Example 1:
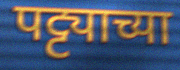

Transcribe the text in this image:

पट्ट्याच्या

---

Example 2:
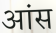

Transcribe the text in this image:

आंस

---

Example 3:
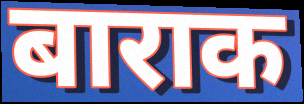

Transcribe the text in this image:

बाराक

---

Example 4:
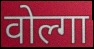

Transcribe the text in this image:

वोल्गा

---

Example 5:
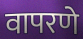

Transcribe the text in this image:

वापरणे